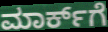
ಮಾರ್ಕ್‌ಗೆ